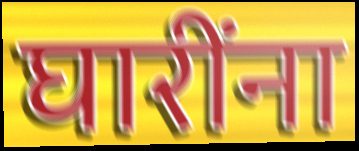
घारींना